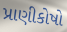
પ્રાણીકોષો